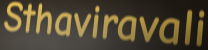
Sthaviravali